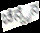
ಚೆನ್ನೈನ